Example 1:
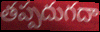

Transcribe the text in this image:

తప్పదుగదా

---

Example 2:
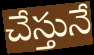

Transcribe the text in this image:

చేస్తునే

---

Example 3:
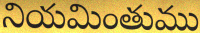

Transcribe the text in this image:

నియమింతుము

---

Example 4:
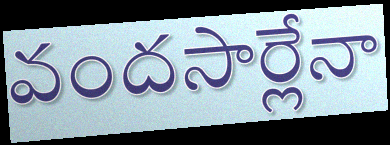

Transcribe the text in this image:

వందసార్లేనా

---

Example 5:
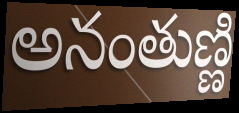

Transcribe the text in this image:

అనంతుణ్ణి